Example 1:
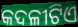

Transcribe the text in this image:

କଦଳୀଟିଏ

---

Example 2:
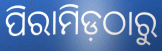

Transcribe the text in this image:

ପିରାମିଡ଼ଠାରୁ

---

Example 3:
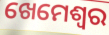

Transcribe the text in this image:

ଖେମେଶ୍ଵର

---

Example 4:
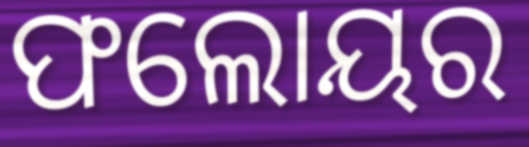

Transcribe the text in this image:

ଫଲୋୟର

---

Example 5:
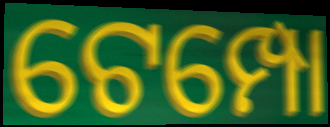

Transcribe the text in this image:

ଟେମ୍ପୋ